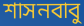
শাসনবাবু